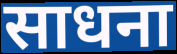
साधना